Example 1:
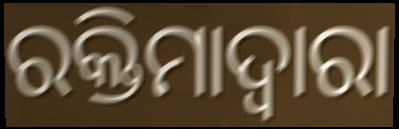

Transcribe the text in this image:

ରକ୍ତିମାଦ୍ୱାରା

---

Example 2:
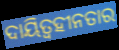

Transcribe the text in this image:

ଦାୟିତ୍ଵହୀନତାର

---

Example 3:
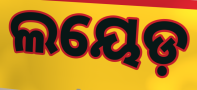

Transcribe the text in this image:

ଲୟେଡ଼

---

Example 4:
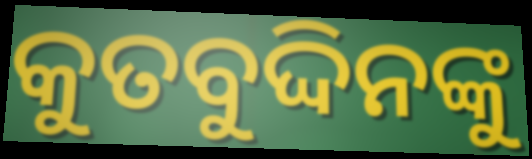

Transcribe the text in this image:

କୁତବୁଦ୍ଦିନଙ୍କୁ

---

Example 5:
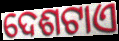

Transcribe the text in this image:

ଦେଶଟାଏ